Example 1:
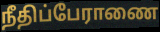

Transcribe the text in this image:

நீதிப்பேராணை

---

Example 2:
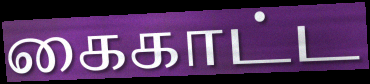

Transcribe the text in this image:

கைகாட்ட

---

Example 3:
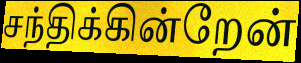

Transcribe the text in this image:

சந்திக்கின்றேன்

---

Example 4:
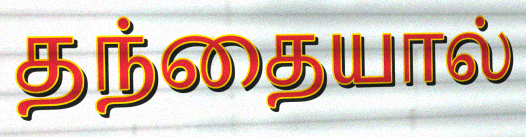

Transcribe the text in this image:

தந்தையால்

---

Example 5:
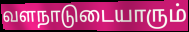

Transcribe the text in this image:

வளநாடுடையாரும்